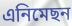
এনিমেছন